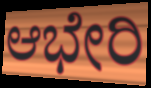
ಆಭೇರಿ